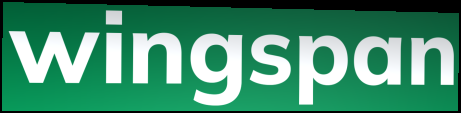
wingspan